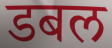
डबल